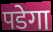
पडेगा